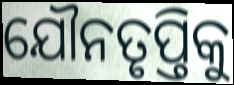
ଯୌନତୃପ୍ତିକୁ